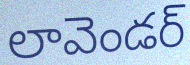
లావెండర్